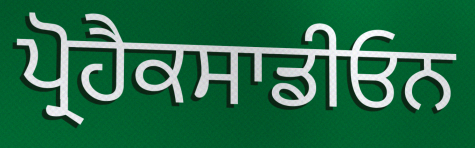
ਪ੍ਰੋਹੈਕਸਾਡੀਓਨ